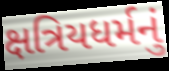
ક્ષત્રિયધર્મનું